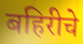
बहिरीचे